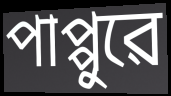
পাপ্পুৱে